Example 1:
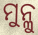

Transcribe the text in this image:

ମୁନ୍ଳୁ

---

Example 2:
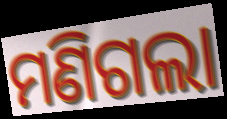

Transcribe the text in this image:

ମଣିଗଲା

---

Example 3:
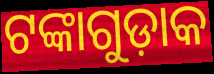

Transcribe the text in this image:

ଟଙ୍କାଗୁଡ଼ାକ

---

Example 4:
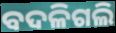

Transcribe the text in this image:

ବଦଳିଗଲି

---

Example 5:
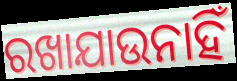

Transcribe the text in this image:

ରଖାଯାଉନାହିଁ